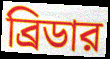
ব্রিডার